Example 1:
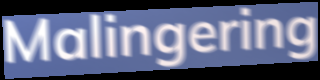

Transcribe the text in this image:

Malingering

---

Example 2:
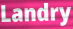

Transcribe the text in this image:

Landry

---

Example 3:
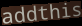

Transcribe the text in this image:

addthis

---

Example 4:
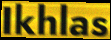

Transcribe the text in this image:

Ikhlas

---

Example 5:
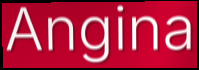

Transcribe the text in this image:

Angina